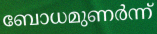
ബോധമുണർന്ന്